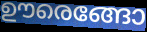
ഊരെങ്ങോ